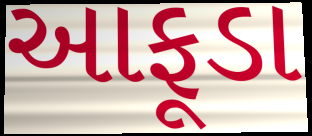
આફૂડા